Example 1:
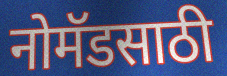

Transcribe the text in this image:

नोमॅडसाठी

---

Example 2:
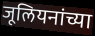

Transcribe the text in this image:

जूलियनांच्या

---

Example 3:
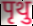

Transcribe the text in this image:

पृथु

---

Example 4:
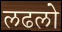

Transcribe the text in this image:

लढलो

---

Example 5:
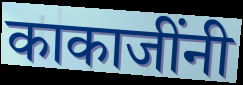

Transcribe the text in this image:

काकाजींनी